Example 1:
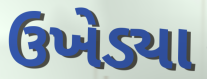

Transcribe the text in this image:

ઉખેડ્યા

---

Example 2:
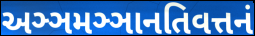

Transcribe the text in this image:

અઞ્ઞમઞ્ઞાનતિવત્તનં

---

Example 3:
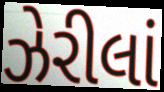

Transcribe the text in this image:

ઝેરીલાં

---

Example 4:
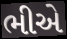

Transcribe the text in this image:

ભીએ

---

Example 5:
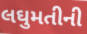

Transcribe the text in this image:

લઘુમતીની